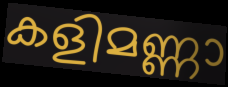
കളിമണ്ണാ